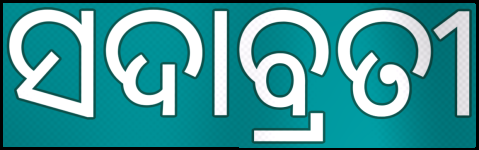
ସଦାବ୍ରତୀ